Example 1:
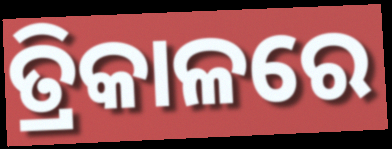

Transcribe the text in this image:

ତ୍ରିକାଳରେ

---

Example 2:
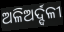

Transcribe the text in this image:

ଅଳିଅର୍ଦ୍ଦଳୀ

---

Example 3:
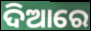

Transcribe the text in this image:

ଦିଆରେ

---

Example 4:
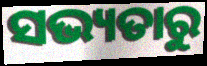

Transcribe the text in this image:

ସଭ୍ୟତାରୁ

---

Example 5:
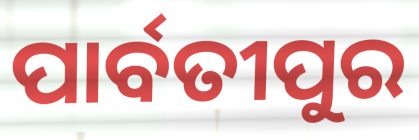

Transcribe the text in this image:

ପାର୍ବତୀପୁର